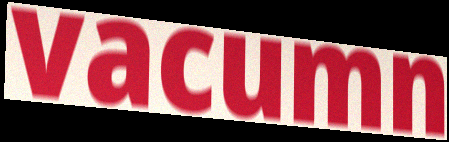
vacumn